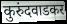
कुरुंदवाडकर